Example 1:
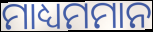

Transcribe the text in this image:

ମାଧ୍ୟମମାନ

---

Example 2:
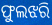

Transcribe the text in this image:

ଫୁଲଝରି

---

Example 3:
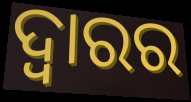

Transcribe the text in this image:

ଦ୍ୱାରର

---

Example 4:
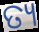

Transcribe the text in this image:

ତ୍ୟ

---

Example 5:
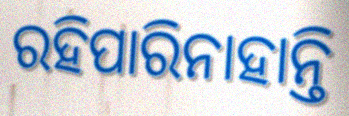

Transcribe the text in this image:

ରହିପାରିନାହାନ୍ତି